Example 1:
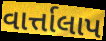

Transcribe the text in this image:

વાર્ત્તાલાપ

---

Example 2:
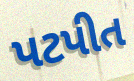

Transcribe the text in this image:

પટપીત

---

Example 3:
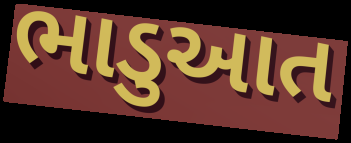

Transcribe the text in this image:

ભાડુઆત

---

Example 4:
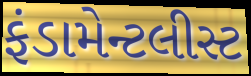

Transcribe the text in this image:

ફંડામેન્ટલીસ્ટ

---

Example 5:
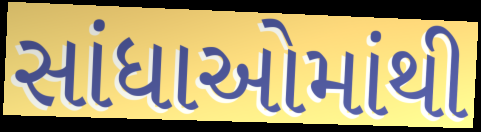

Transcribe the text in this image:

સાંધાઓમાંથી